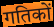
गतिकों